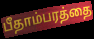
பீதாம்பரத்தை